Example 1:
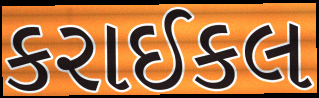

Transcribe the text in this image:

કરાઈકલ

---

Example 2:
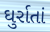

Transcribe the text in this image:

ઘુર્રાતાં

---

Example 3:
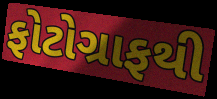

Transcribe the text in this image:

ફોટોગ્રાફથી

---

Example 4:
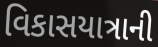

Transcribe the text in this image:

વિકાસયાત્રાની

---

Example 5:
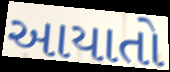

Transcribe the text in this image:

આયાતો